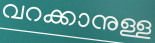
വറക്കാനുള്ള